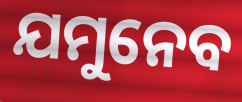
ଯମୁନେବ